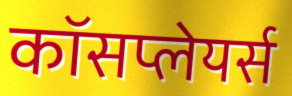
कॉसप्लेयर्स